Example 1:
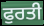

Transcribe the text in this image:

ਫੁਰਤੀ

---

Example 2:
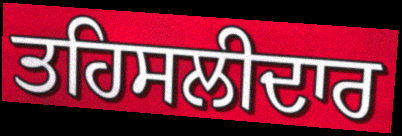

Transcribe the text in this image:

ਤਹਿਸਲੀਦਾਰ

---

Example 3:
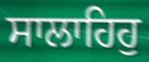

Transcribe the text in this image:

ਸਾਲਾਹਿਹੁ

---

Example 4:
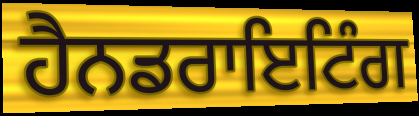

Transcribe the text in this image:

ਹੈਨਡਰਾਇਟਿੰਗ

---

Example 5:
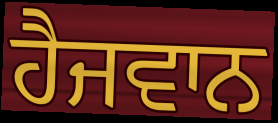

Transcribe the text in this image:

ਹੈਜਵਾਨ